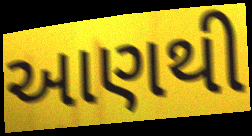
આણથી